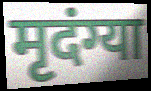
मृदंग्या